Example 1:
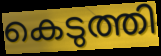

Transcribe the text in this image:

കെടുത്തി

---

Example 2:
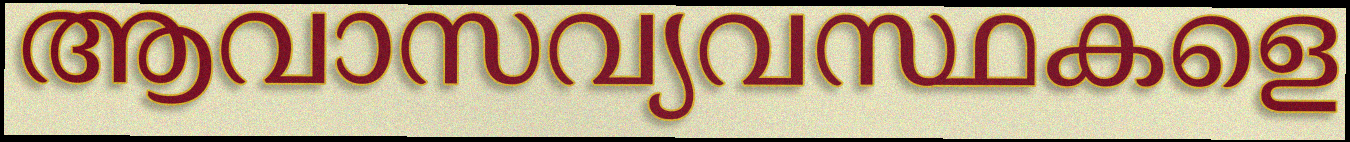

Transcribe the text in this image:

ആവാസവ്യവസ്ഥകളെ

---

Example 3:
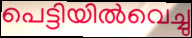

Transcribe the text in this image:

പെട്ടിയിൽവെച്ചു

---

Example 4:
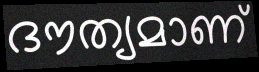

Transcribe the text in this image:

ദൗത്യമാണ്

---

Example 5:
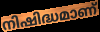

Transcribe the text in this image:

നിഷിദ്ധമാണ്